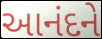
આનંદને